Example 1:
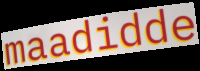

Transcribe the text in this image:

maadidde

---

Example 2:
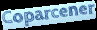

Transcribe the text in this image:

Coparcener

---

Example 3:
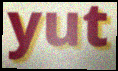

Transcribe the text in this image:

yut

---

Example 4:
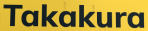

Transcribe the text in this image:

Takakura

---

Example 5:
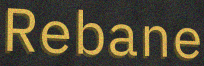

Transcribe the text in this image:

Rebane